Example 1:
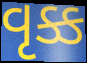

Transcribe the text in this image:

વૃક્ક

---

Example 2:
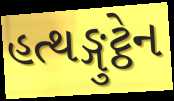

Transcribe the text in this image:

હત્થઙ્ગુટ્ઠેન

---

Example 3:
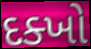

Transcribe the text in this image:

દક્ખો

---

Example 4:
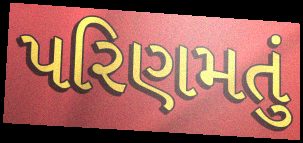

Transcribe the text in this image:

પરિણમતું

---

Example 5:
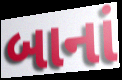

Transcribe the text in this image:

બાનાં